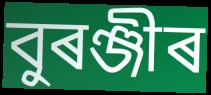
বুৰঞ্জীৰ